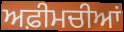
ਅਫ਼ੀਮਚੀਆਂ